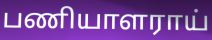
பணியாளராய்